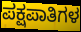
ಪಕ್ಷಪಾತಿಗಳ